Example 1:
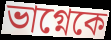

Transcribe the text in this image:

ভাগ্নেকে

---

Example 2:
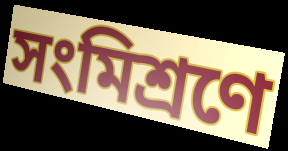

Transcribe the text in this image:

সংমিশ্রণে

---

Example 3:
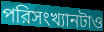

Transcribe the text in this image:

পরিসংখ্যানটাও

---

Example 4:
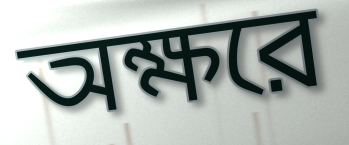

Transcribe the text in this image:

অক্ষরে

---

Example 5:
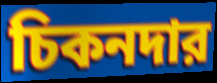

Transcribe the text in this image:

চিকনদার